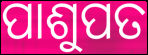
ପାଶୁପତ